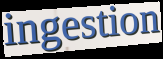
ingestion